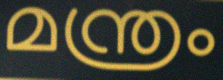
മന്ത്രം